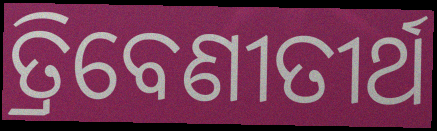
ତ୍ରିବେଣୀତୀର୍ଥ